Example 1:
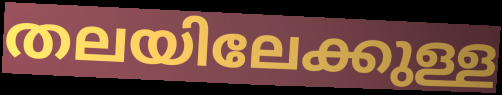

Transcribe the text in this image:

തലയിലേക്കുള്ള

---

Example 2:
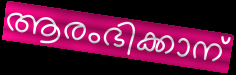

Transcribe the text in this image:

ആരംഭിക്കാന്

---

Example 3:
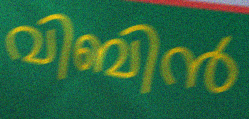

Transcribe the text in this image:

വിബിൻ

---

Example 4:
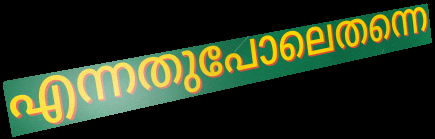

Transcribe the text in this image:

എന്നതുപോലെതന്നെ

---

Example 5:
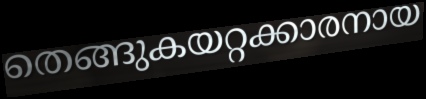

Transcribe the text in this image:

തെങ്ങുകയറ്റക്കാരനായ